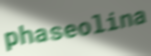
phaseolina